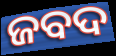
ଜବଦ